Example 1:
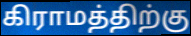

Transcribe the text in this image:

கிராமத்திற்கு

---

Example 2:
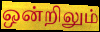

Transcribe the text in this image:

ஒன்றிலும்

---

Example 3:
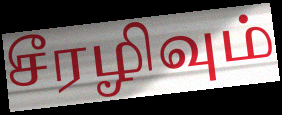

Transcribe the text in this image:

சீரழிவும்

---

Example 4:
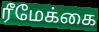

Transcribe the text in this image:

ரீமேக்கை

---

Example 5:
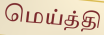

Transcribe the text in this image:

மெய்த்தி